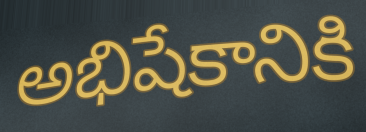
అభిషేకానికి